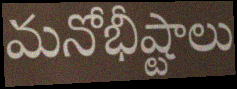
మనోభీష్టాలు